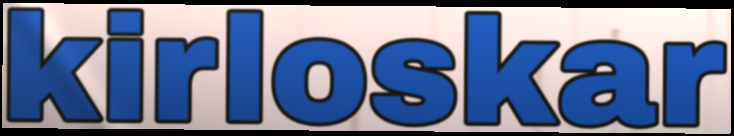
kirloskar